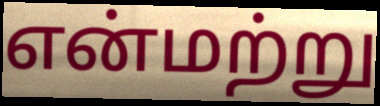
என்மற்று